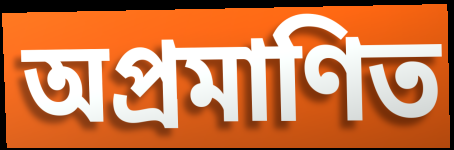
অপ্ৰমাণিত